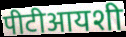
पीटीआयशी